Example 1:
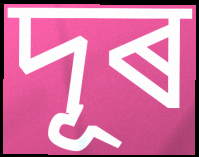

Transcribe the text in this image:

দূৰ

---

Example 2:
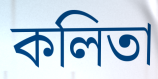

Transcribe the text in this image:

কলিতা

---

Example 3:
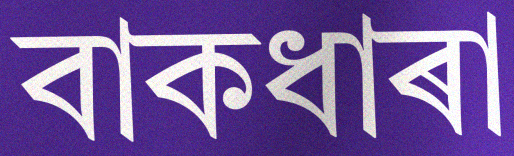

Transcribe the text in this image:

বাকধাৰা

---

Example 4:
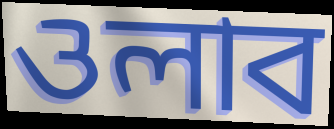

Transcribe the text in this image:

ওলাব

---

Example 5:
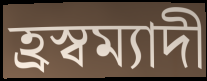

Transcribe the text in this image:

হ্ৰস্বম্যাদী